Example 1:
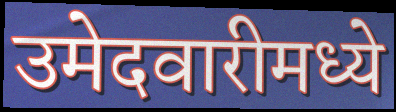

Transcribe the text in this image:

उमेदवारीमध्ये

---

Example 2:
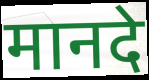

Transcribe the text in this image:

मानदे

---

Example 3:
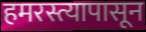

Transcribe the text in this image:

हमरस्त्यापासून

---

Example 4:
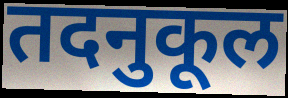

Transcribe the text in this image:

तदनुकूल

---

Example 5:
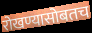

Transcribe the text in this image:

रोखण्यासोबतच